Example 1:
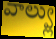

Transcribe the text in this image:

వాల్వ్లు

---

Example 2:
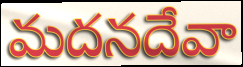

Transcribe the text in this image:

మదనదేవా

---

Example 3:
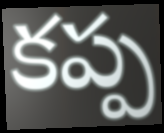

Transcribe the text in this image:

కప్ప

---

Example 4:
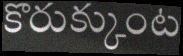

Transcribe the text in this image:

కొరుక్కుంట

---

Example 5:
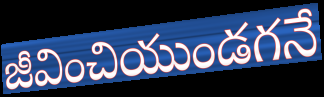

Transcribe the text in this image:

జీవించియుండగనే